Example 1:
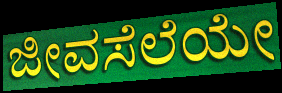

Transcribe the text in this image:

ಜೀವಸೆಲೆಯೇ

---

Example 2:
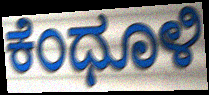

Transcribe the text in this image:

ಕೆಂಧೂಳಿ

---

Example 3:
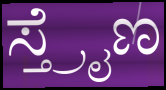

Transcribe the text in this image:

ಸ್ತ್ರೈಣ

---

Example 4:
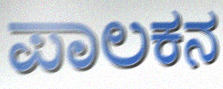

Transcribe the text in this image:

ಪಾಲಕನ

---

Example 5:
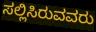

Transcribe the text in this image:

ಸಲ್ಲಿಸಿರುವವರು